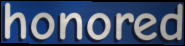
honored